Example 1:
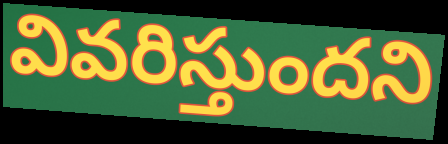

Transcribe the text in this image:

వివరిస్తుందని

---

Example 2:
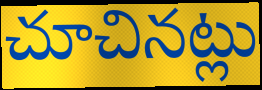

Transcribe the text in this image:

చూచినట్లు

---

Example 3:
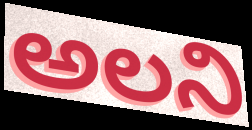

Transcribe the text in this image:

అలని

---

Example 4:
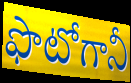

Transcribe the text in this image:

ఫొటోగానీ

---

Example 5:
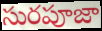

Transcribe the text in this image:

సురపూజా